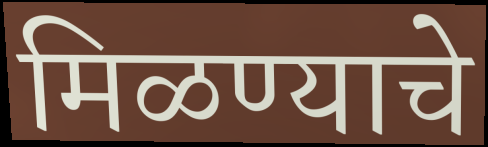
मिळण्याचे